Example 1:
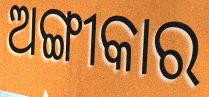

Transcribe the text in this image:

ଅଙ୍ଗୀକାର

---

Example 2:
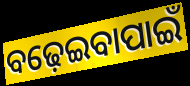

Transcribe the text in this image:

ବଢ଼େଇବାପାଇଁ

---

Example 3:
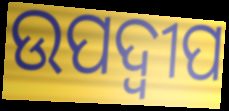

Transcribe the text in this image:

ଉପଦ୍ବୀପ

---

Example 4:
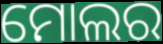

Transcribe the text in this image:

ମୋଲର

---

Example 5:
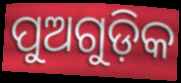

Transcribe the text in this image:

ପୁଅଗୁଡ଼ିକ